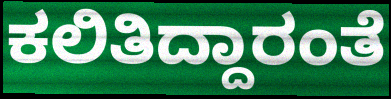
ಕಲಿತಿದ್ದಾರಂತೆ